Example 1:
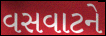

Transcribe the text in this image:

વસવાટને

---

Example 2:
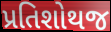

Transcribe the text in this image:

પ્રતિશોથજ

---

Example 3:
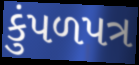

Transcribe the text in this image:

કુંપળપત્ર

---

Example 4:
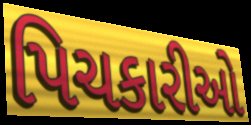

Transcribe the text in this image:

પિચકારીઓ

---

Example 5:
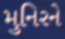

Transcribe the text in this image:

મુનિરને